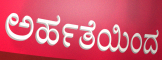
ಅರ್ಹತೆಯಿಂದ